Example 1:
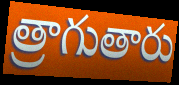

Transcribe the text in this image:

త్రాగుతారు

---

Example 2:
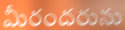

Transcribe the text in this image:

మీరందరును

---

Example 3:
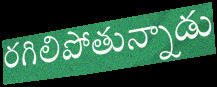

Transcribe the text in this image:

రగిలిపోతున్నాడు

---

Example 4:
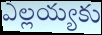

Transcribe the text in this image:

ఎల్లయ్యకు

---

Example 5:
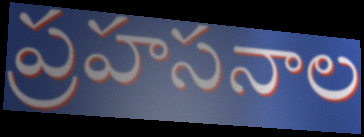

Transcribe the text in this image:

ప్రహసనాల